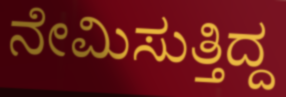
ನೇಮಿಸುತ್ತಿದ್ದ